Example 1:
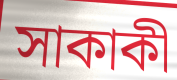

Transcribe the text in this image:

সাকাকী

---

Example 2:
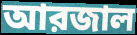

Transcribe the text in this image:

আরজাল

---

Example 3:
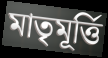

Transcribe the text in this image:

মাতৃমূর্ত্তি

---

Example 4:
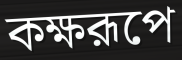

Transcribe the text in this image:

কক্ষরূপে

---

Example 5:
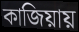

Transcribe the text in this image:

কাজিয়ায়